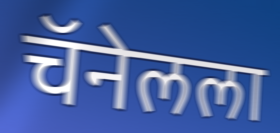
चॅनेलला